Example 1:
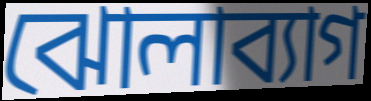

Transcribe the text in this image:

ঝোলাব্যাগ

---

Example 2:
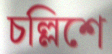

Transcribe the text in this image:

চল্লিশে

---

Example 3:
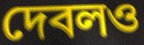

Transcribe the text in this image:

দেবলও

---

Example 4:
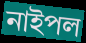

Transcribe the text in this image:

নাইপল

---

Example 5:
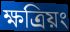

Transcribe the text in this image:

ক্ষত্রিয়ং